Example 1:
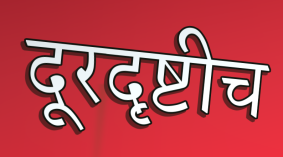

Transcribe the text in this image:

दूरदृष्टीच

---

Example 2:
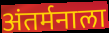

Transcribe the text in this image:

अंतर्मनाला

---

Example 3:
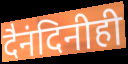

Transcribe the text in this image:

दैनंदिनीही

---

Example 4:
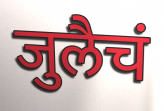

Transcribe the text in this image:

जुलैचं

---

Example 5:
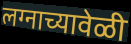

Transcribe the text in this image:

लग्नाच्यावेळी